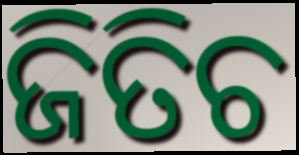
ଜିତିଚ